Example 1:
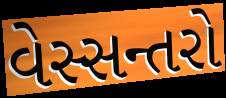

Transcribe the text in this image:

વેસ્સન્તરો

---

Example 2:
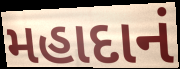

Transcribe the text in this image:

મહાદાનં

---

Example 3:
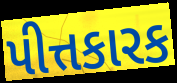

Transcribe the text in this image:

પીત્તકારક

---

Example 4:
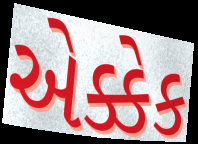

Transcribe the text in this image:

એક્કેક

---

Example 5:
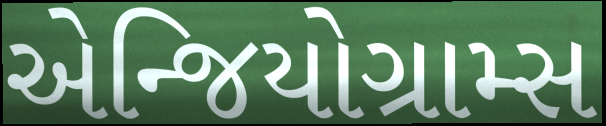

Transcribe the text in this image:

એન્જિયોગ્રામ્સ